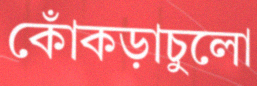
কোঁকড়াচুলো